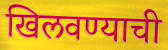
खिलवण्याची